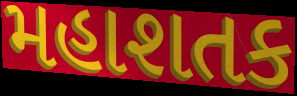
મહાશતક